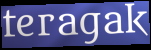
teragak